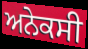
ਅਨੇਕਸੀ